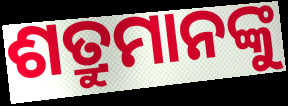
ଶତ୍ରୁମାନଙ୍କୁ